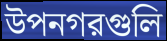
উপনগরগুলি